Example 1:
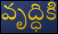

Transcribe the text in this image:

వృద్ధికి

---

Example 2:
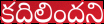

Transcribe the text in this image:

కదిలిందని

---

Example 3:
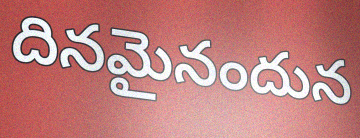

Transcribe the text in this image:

దినమైనందున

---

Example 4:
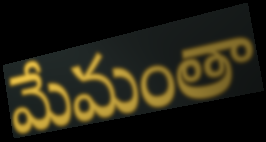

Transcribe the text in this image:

మేమంతా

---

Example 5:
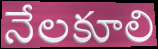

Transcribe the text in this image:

నేలకూలి